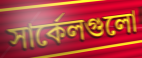
সার্কেলগুলো